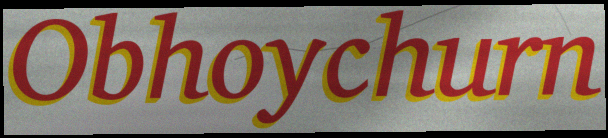
Obhoychurn